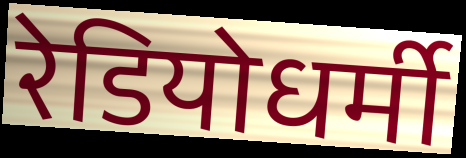
रेडियोधर्मी